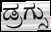
ಡ್ರಗ್ಸು